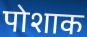
पोशाक